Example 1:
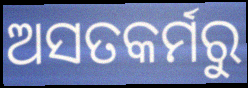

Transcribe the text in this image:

ଅସତକର୍ମରୁ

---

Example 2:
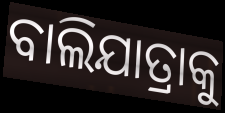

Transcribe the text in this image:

ବାଲିଯାତ୍ରାକୁ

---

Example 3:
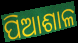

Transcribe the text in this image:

ପିଆଶାଳ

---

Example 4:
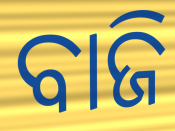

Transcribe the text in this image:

ବାଜି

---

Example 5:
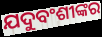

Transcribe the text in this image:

ଯଦୁବଂଶୀଙ୍କର